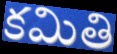
కమితి